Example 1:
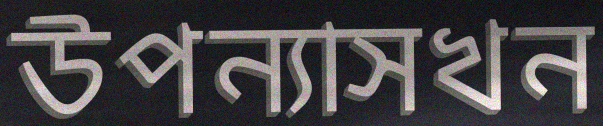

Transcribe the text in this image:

উপন্যাসখন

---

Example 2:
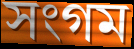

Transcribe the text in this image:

সংগম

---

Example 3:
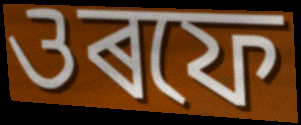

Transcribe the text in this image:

ওৰফে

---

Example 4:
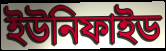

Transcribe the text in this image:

ইউনিফাইড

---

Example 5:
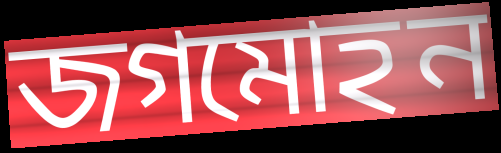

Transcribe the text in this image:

জগমোহন